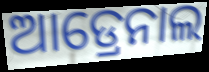
ଆଡ୍ରେନାଲ